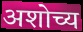
अशोच्य